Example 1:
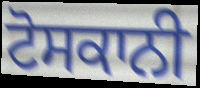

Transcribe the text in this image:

ਟੋਸਕਾਨੀ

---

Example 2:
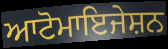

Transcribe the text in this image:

ਆਟੋਮਾਇਜੇਸ਼ਨ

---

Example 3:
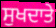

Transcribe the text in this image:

ਸੁਖਦਾਤੇ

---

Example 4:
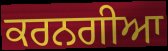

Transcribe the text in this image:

ਕਰਨਗੀਆ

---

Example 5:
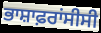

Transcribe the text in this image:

ਭਾਸ਼ਾਫ਼ਰਾਂਸੀਸੀ